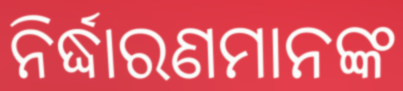
ନିର୍ଦ୍ଧାରଣମାନଙ୍କ